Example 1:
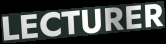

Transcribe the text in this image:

LECTURER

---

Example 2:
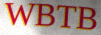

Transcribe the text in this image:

WBTB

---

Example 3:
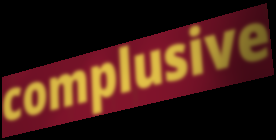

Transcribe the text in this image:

complusive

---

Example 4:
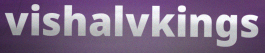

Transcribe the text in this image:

vishalvkings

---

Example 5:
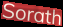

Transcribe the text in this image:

Sorath